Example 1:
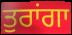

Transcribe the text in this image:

ਤੁਰਾਂਗਾ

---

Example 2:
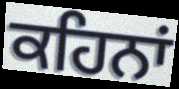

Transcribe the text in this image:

ਕਹਿਨਾਂ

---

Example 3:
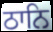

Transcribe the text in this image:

ਠਾਨਿ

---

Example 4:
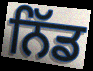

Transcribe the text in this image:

ਨਿੱਡ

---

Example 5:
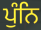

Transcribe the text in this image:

ਪੁੰਨਿ